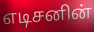
எடிசனின்